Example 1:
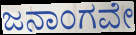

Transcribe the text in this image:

ಜನಾಂಗವೇ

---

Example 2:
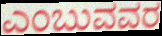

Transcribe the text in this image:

ಎಂಬುವವರ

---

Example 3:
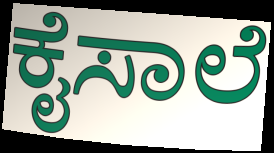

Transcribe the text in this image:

ಕೈಸಾಲೆ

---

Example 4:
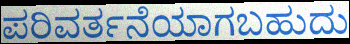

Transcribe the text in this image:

ಪರಿವರ್ತನೆಯಾಗಬಹುದು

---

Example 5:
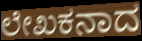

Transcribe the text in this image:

ಲೇಖಕನಾದ